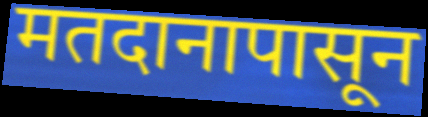
मतदानापासून